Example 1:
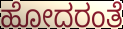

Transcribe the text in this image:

ಹೋದರಂತೆ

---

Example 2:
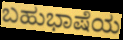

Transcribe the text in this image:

ಬಹುಭಾಷೆಯ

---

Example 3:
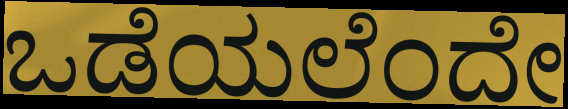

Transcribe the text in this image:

ಒಡೆಯಲೆಂದೇ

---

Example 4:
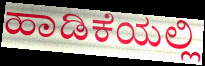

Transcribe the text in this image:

ಹಾಡಿಕೆಯಲ್ಲಿ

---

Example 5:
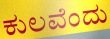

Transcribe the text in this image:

ಕುಲವೆಂದು